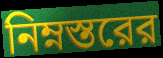
নিম্নস্তরের